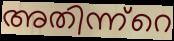
അതിന്ന്റെ